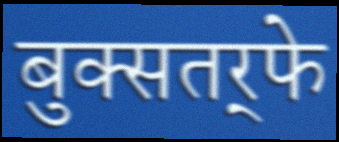
बुक्सतर्फे